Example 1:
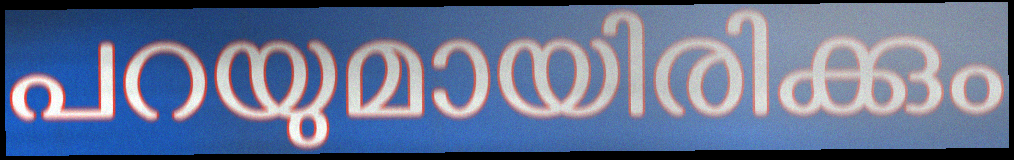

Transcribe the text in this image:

പറയുമായിരിക്കും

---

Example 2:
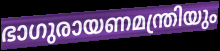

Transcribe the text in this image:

ഭാഗുരായണമന്ത്രിയും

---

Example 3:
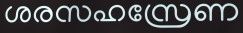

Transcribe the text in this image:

ശരസഹസ്രേണ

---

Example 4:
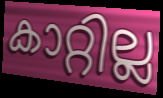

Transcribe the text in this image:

കാറ്റില്ല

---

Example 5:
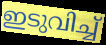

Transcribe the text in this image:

ഇടുവിച്ച്